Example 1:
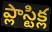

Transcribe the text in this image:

ప్లాస్టిక్ల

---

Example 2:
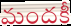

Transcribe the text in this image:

మందకీ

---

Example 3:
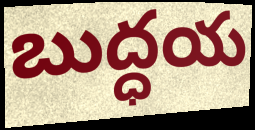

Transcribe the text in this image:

బుద్ధయ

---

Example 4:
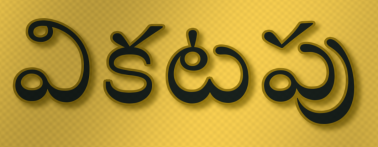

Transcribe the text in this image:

వికటపు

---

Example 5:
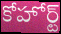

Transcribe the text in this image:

కోహోర్ట్